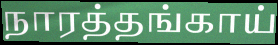
நாரத்தங்காய்